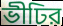
ভীঢির